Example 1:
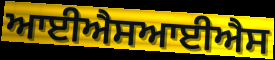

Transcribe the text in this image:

ਆਈਐਸਆਈਐਸ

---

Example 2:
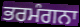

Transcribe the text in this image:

ਭਰਮੰਗਨਾ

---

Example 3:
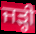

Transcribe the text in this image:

ਜੜ੍ਹੀ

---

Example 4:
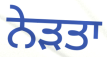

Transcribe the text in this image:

ਨੇੜਤਾ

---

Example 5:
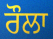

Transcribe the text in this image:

ਰੌਲਾ